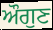
ਔਗੁਣ